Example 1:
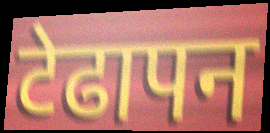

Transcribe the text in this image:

टेढापन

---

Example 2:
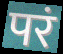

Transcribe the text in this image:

परं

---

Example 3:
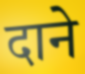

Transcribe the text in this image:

दाने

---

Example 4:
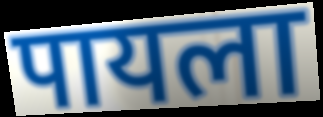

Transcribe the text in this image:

पायला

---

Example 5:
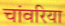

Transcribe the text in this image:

चांवरिया